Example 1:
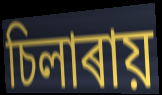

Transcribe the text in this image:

চিলাৰায়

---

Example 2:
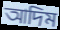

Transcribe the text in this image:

আদিম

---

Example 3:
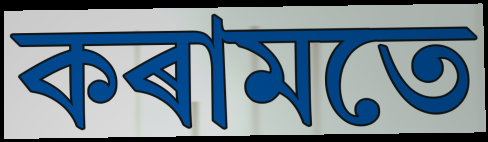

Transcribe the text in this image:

কৰামতে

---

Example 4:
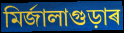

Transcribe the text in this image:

মিৰ্জালাগুড়াৰ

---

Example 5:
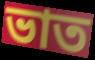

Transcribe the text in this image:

ভাত